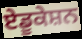
ਏਡੂਕੇਸ਼ਨ